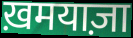
ख़मयाज़ा